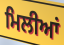
ਮਿਲੀਆਂ